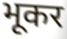
भूकर